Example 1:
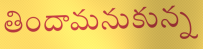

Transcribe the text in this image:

తిందామనుకున్న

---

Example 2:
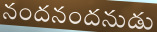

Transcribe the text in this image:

నందనందనుడు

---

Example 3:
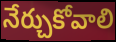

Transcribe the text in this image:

నేర్చుకోవాలి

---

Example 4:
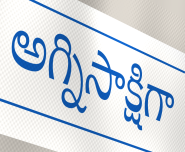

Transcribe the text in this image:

అగ్నిసాక్షిగా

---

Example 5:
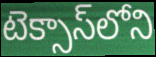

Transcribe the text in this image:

టెక్సాస్‌లోని